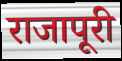
राजापूरी